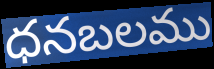
ధనబలము